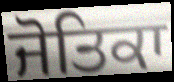
ਜੋਤਿਕਾ